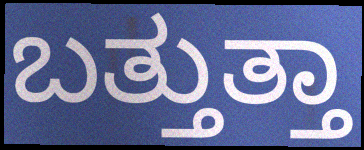
ಬತ್ತುತ್ತಾ